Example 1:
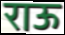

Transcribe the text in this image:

राऊ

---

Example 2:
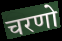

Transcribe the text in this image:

चरणो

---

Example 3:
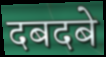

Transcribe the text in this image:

दबदबे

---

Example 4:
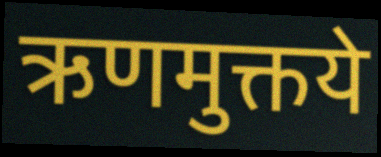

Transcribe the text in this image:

ऋणमुक्तये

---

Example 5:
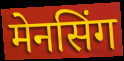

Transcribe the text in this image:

मेनसिंग